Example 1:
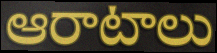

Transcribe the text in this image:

ఆరాటాలు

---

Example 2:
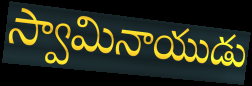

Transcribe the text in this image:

స్వామినాయుడు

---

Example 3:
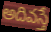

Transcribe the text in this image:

అదివస్తే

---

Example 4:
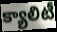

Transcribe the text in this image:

క్యాలిటీ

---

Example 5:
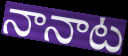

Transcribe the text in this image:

నానాట